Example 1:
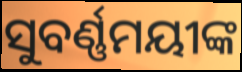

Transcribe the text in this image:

ସୁବର୍ଣ୍ଣମୟୀଙ୍କ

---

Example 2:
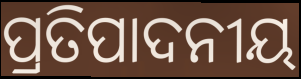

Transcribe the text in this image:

ପ୍ରତିପାଦନୀୟ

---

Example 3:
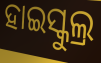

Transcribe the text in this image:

ହାଇସ୍କୁଲ୍ର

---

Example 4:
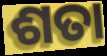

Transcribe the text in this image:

ଶତା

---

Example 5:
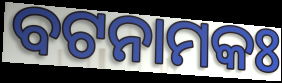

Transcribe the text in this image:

ବଟନାମକଃ